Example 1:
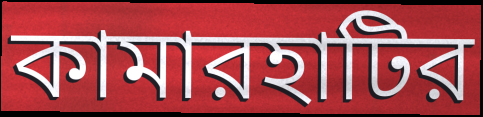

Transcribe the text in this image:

কামারহাটির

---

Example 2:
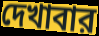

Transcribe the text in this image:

দেখাবার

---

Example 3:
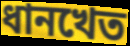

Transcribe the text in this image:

ধানখেত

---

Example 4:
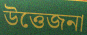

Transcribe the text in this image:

উত্তেজনা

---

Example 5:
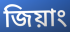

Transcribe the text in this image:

জিয়াং